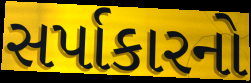
સર્પાકારનો